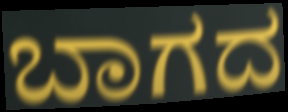
ಬಾಗದ